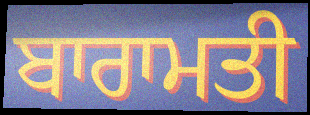
ਬਾਰਾਮਤੀ